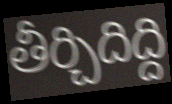
తీర్చిదిద్ది